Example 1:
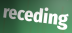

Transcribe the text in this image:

receding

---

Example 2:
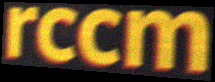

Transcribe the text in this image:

rccm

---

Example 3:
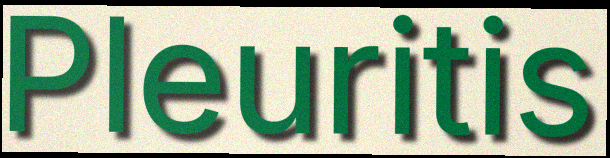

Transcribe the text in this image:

Pleuritis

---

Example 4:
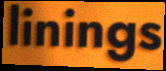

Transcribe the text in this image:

linings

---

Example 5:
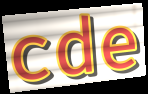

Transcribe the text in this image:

cde